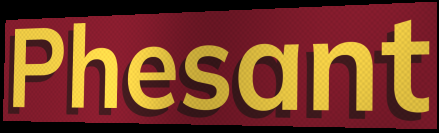
Phesant